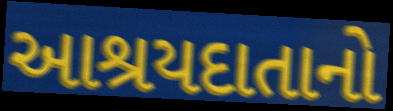
આશ્રયદાતાનો